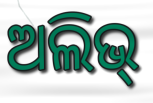
ଅଲିଭ୍